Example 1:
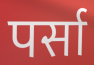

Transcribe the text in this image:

पर्सा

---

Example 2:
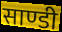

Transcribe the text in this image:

साण्डी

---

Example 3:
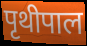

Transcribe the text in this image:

पृथीपाल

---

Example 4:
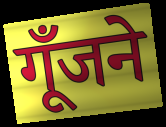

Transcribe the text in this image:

गूँजने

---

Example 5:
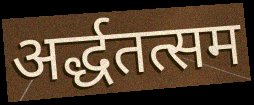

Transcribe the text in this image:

अर्द्धतत्सम